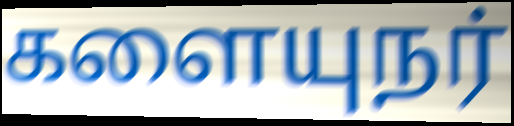
களையுநர்